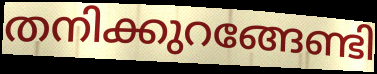
തനിക്കുറങ്ങേണ്ടി